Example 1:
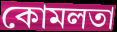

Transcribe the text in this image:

কোমলতা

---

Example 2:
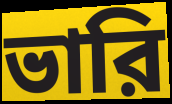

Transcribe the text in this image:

ভারি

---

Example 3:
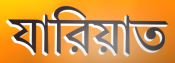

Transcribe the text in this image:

যারিয়াত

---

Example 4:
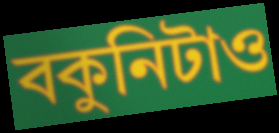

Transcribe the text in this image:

বকুনিটাও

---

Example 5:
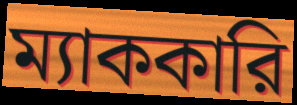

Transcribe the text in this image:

ম্যাককারি